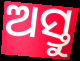
ଅସ୍ତୁ